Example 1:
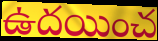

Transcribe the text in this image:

ఉదయించ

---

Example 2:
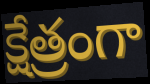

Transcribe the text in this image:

క్షేత్రంగా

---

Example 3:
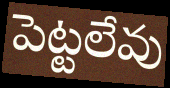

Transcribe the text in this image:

పెట్టలేవు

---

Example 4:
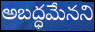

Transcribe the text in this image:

అబద్ధమేనని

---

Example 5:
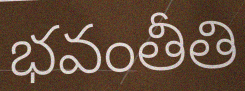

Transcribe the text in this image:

భవంతీతి